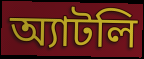
অ্যাটলি